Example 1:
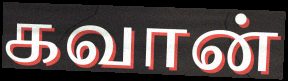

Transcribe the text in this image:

கவான்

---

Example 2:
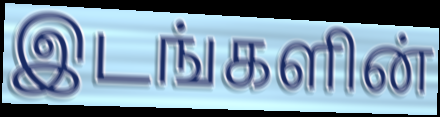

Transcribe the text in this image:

இடங்களின்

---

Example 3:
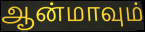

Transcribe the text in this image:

ஆன்மாவும்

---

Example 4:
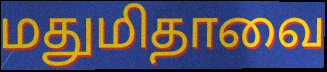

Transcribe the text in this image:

மதுமிதாவை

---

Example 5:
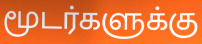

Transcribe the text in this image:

மூடர்களுக்கு